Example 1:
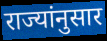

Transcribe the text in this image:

राज्यांनुसार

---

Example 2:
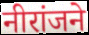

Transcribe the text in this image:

नीरांजने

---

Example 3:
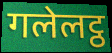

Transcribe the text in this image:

गलेलट्ठ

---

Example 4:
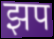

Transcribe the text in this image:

झप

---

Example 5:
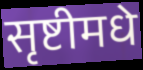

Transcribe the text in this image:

सृष्टीमधे